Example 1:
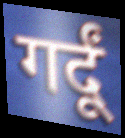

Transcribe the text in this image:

गर्दूं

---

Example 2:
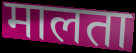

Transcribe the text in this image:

मालता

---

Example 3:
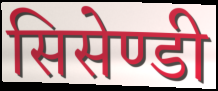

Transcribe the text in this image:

सिसेण्डी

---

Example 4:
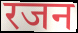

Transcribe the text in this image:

रजन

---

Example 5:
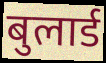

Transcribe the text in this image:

बुलार्ड